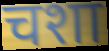
चशा